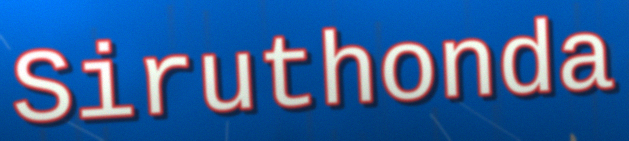
Siruthonda